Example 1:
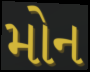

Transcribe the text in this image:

મોન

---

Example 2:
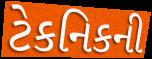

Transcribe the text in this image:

ટેકનિકની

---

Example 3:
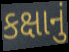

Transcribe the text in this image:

કક્ષાનું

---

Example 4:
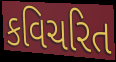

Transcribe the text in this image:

કવિચરિત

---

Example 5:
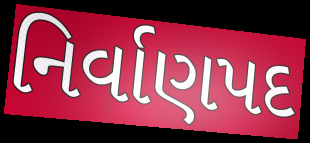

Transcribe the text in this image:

નિર્વાણપદ